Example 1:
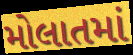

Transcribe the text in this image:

મોલાતમાં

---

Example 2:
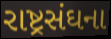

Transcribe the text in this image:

રાષ્ટ્રસંઘના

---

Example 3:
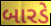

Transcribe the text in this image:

બારડે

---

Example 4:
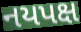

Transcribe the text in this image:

નયપક્ષ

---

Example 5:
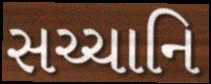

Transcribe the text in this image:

સચ્ચાનિ